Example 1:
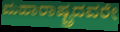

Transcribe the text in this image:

ಮಹಾರಾಷ್ಟ್ರದವರೇ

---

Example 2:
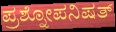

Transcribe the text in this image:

ಪ್ರಶ್ನೋಪನಿಷತ್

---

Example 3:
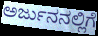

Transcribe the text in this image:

ಅರ್ಜುನನಲ್ಲಿಗೆ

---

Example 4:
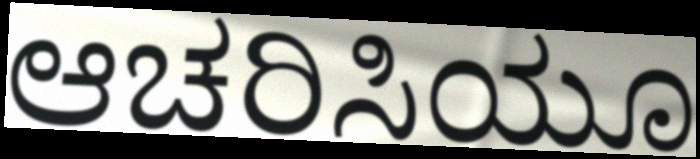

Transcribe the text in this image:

ಆಚರಿಸಿಯೂ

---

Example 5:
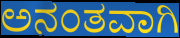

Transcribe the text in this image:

ಅನಂತವಾಗಿ